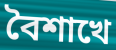
বৈশাখে